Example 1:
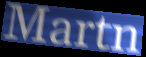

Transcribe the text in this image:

Martn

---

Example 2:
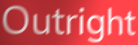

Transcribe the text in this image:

Outright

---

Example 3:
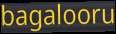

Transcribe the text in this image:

bagalooru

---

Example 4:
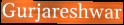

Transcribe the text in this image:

Gurjareshwar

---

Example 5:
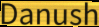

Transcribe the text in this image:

Danush